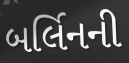
બર્લિનની